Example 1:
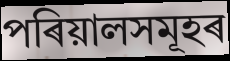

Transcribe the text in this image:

পৰিয়ালসমূহৰ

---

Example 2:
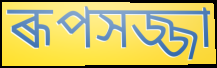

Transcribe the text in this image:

ৰূপসজ্জা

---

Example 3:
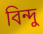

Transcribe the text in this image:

বিন্দু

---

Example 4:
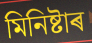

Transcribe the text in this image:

মিনিষ্টাৰ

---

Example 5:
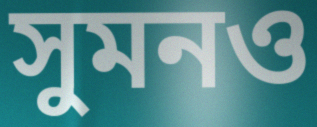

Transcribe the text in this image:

সুমনও